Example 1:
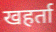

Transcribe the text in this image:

खहर्ता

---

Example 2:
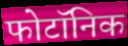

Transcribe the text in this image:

फोटॉनिक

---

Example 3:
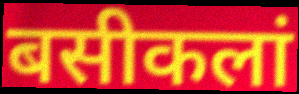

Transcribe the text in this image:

बसीकलां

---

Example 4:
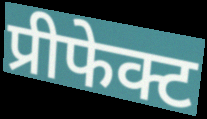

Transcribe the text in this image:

प्रीफेक्ट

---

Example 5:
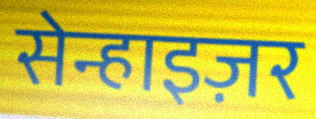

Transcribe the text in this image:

सेन्हाइज़र